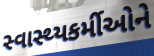
સ્વાસ્થ્યકર્મીઓને